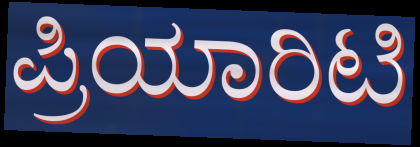
ಪ್ರಿಯಾರಿಟಿ